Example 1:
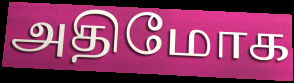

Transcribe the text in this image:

அதிமோக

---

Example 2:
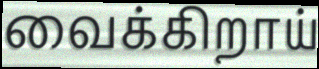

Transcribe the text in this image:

வைக்கிறாய்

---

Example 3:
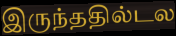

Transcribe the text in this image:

இருந்ததில்டல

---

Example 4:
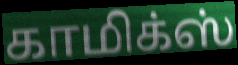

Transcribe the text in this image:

காமிக்ஸ்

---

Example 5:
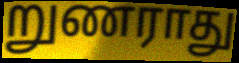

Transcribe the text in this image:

றுணராது